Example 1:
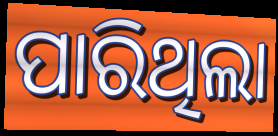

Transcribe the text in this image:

ପାରିଥିଲା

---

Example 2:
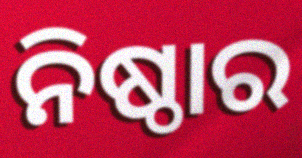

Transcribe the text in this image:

ନିଷ୍ଠାର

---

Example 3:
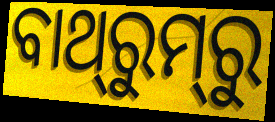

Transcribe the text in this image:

ବାଥ୍‌ରୁମ୍‌ରୁ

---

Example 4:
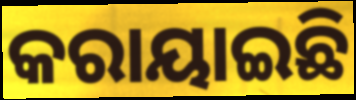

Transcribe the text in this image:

କରାୟାଇଛି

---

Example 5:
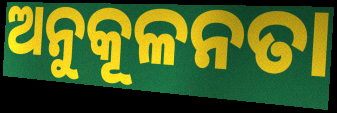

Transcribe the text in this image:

ଅନୁକୂଳନତା